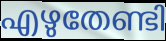
എഴുതേണ്ടി